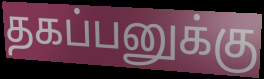
தகப்பனுக்கு